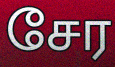
சேர